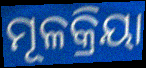
ମୂଳକ୍ରିୟା